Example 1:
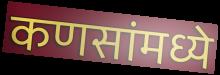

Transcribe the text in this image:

कणसांमध्ये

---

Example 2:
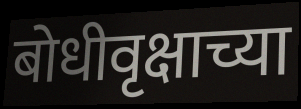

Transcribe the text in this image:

बोधीवृक्षाच्या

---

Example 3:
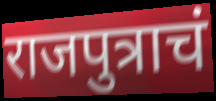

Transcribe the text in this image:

राजपुत्राचं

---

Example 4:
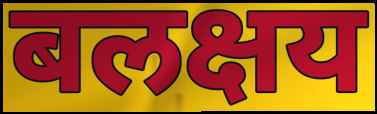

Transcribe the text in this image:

बलक्षय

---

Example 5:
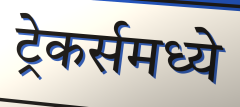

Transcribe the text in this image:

ट्रेकर्समध्ये